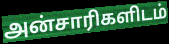
அன்சாரிகளிடம்